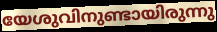
യേശുവിനുണ്ടായിരുന്നു